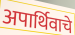
अपार्थिवाचे